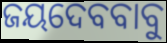
ଜୟଦେବବାବୁ